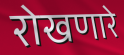
रोखणारे